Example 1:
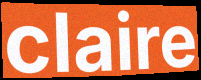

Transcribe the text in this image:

claire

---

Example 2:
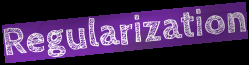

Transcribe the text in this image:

Regularization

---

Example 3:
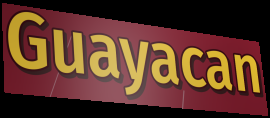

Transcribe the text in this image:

Guayacan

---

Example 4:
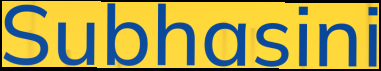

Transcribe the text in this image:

Subhasini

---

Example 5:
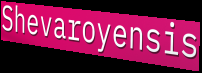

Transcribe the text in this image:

Shevaroyensis